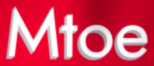
Mtoe